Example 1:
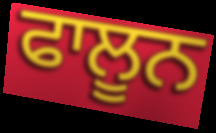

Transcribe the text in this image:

ਫਾਲੂਨ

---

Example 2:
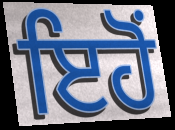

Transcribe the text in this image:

ਇਹੋਂ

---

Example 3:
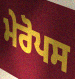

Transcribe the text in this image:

ਮੇਰੋਪਸ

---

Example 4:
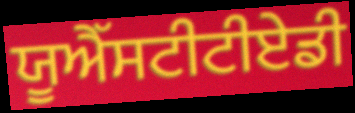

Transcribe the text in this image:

ਯੂਐੱਸਟੀਟੀਏਡੀ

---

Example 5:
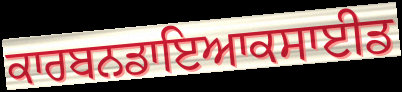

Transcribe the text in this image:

ਕਾਰਬਨਡਾਇਆਕਸਾਈਡ